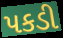
પકડી